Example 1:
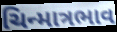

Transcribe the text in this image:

ચિન્માત્રભાવ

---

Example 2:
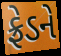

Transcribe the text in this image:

ફ્રેડને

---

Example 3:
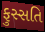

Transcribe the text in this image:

ફુસ્સતિ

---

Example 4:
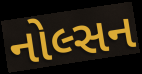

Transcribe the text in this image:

નોલ્સન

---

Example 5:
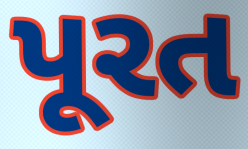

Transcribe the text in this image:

પૂરત